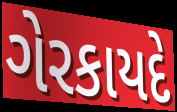
ગેરકાયદે